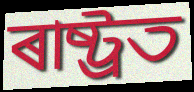
ৰাষ্ট্ৰত